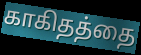
காகிதத்தை